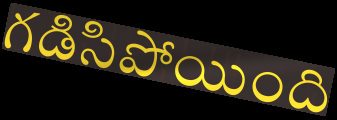
గడిసిపోయింది